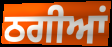
ਠਗੀਆਂ